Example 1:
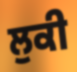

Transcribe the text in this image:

ਲੁਕੀ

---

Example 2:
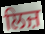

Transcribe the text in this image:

ਲਿਜ਼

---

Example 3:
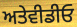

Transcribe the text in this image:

ਅਤੇਵੀਡੀਓ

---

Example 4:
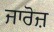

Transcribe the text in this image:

ਜਾਰੋਜ਼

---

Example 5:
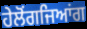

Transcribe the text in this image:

ਹੇਲੋਂਗਜਿਆਂਗ